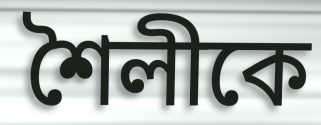
শৈলীকে